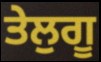
ਤੇਲੁਗੂ